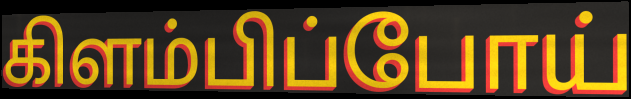
கிளம்பிப்போய்